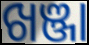
ଖଞ୍ଜା